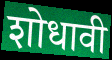
शोधावी